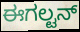
ಈಗಲ್ಟನ್